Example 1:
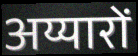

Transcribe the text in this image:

अय्यारों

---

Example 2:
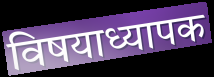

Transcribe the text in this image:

विषयाध्यापक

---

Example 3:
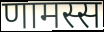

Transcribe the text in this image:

णामस्स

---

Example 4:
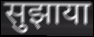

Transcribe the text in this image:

सुझाया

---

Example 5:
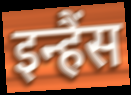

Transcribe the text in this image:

इन्हैंस